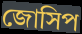
জোসিপ